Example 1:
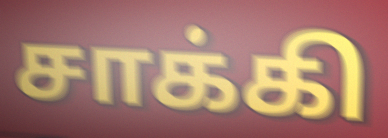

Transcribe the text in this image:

சாக்கி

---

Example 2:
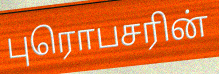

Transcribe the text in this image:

புரொபசரின்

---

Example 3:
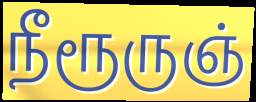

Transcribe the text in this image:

நீரூருஞ்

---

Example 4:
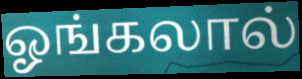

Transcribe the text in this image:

ஓங்கலால்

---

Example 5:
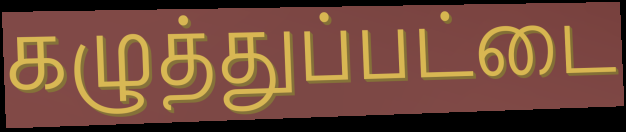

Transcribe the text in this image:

கழுத்துப்பட்டை